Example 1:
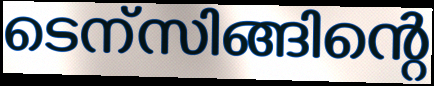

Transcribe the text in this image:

ടെന്സിങ്ങിന്റെ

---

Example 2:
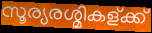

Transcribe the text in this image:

സൂര്യരശ്മികള്ക്ക്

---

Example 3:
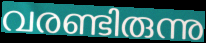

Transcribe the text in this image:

വരണ്ടിരുന്നു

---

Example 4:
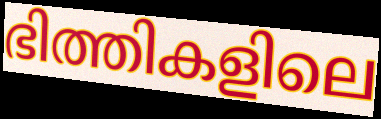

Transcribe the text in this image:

ഭിത്തികളിലെ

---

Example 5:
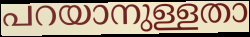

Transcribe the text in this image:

പറയാനുള്ളതാ